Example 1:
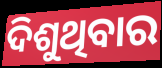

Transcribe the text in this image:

ଦିଶୁଥିବାର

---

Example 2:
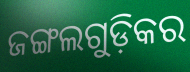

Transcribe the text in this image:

ଜଙ୍ଗଲଗୁଡ଼ିକର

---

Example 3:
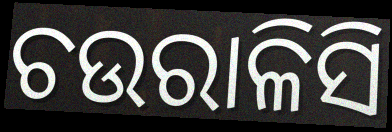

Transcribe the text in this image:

ଚଉରାଳିସି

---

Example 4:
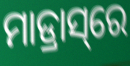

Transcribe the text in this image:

ମାଡ୍ରାସ୍‌ରେ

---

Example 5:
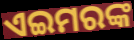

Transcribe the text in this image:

ଏଇମରଙ୍କ